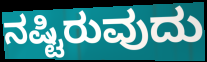
ನಷ್ಟಿರುವುದು